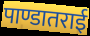
पाण्डातराई